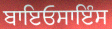
ਬਾਇਓਸਾਇੰਸ